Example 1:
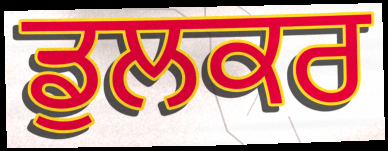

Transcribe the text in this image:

ਡੁਲਕਰ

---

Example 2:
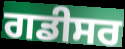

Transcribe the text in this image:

ਗਡੀਸਰ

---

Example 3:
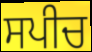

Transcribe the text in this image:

ਸਪੀਚ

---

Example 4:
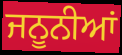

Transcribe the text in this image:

ਜਨੂਨੀਆਂ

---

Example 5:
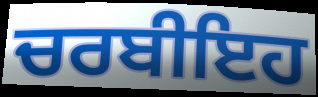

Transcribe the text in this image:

ਚਰਬੀਇਹ